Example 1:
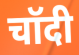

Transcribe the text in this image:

चॉदी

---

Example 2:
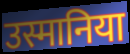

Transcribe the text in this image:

उस्मानिया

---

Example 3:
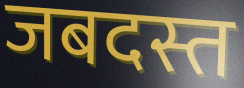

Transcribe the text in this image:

जबदस्त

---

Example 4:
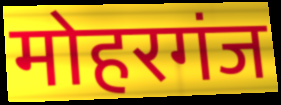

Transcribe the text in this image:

मोहरगंज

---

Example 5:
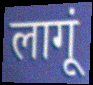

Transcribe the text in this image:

लागूं